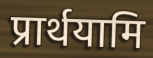
प्रार्थयामि